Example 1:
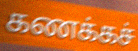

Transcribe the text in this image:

கணக்கச்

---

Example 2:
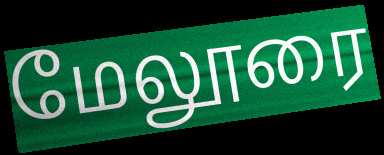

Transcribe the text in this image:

மேலூரை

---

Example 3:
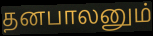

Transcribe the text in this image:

தனபாலனும்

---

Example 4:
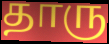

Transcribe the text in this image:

தாரு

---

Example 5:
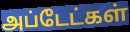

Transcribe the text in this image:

அப்டேட்கள்